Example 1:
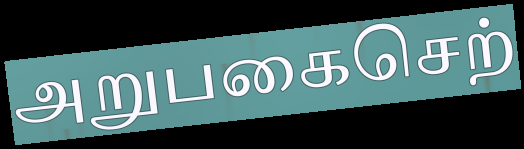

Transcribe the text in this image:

அறுபகைசெற்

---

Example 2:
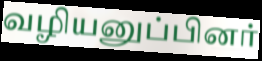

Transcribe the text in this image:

வழியனுப்பினர்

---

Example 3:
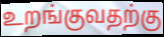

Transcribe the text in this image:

உறங்குவதற்கு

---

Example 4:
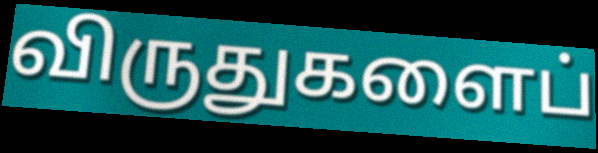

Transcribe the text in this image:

விருதுகளைப்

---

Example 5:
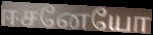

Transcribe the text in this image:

ஈசனேயோ